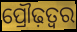
ପ୍ରୌଢ଼ତ୍ୱର